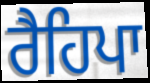
ਰੈਹਿਪਾ